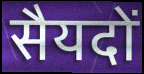
सैयदों